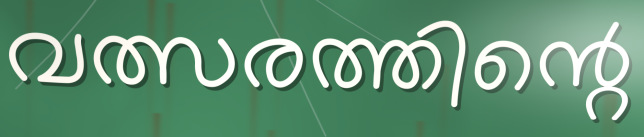
വത്സരത്തിന്റെ